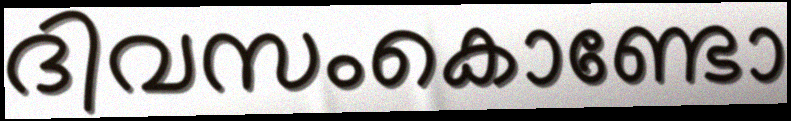
ദിവസംകൊണ്ടോ